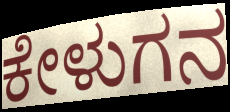
ಕೇಳುಗನ